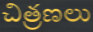
చిత్రణలు